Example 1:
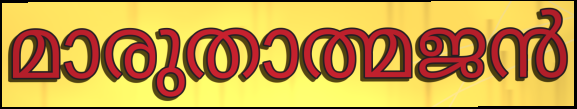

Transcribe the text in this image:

മാരുതാത്മജൻ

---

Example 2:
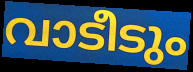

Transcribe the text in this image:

വാടീടും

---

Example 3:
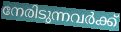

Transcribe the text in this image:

നേരിടുന്നവർക്ക്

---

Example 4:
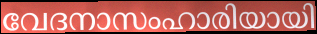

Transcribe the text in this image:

വേദനാസംഹാരിയായി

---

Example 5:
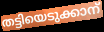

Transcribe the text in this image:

തട്ടിയെടുക്കാന്